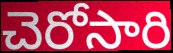
చెరోసారి